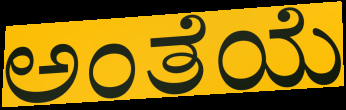
ಅಂತೆಯೆ